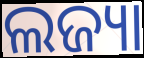
ଲଜ୍ୟା